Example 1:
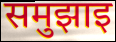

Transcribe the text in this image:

समुझाइ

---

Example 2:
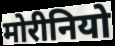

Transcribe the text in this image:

मोरीनियो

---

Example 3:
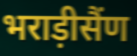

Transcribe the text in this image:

भराड़ीसैंण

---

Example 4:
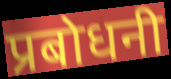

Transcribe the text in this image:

प्रबोधनी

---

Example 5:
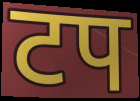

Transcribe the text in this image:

टप